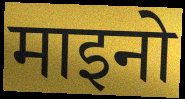
माइनो